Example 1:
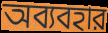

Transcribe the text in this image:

অব্যবহার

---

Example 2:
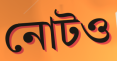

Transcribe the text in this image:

নোটও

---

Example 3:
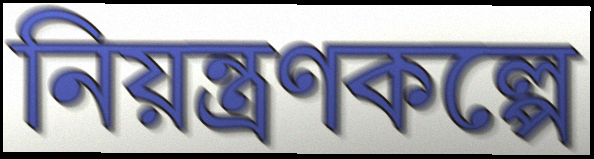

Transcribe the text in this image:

নিয়ন্ত্রণকল্পে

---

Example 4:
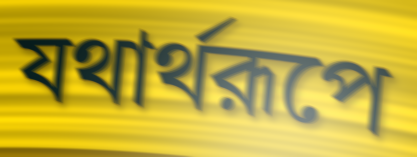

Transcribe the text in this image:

যথার্থরূপে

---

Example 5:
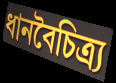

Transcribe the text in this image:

ধানবৈচিত্র্য